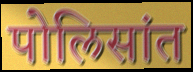
पोलिसांत